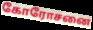
கோரோசனை